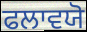
ਫਲਾਵਯੋ